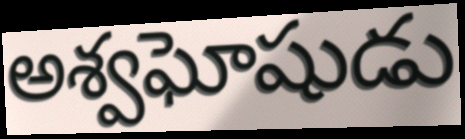
అశ్వఘోషుడు